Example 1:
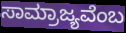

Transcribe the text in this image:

ಸಾಮ್ರಾಜ್ಯವೆಂಬ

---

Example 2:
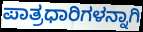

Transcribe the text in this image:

ಪಾತ್ರಧಾರಿಗಳನ್ನಾಗಿ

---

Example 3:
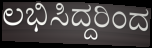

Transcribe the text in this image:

ಲಭಿಸಿದ್ದರಿಂದ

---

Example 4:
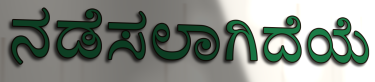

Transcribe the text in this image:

ನಡೆಸಲಾಗಿದೆಯೆ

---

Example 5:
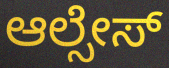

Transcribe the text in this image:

ಆಲ್ಸೇಸ್